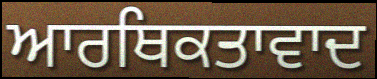
ਆਰਥਿਕਤਾਵਾਦ